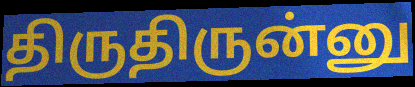
திருதிருன்னு